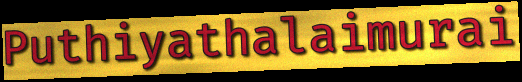
Puthiyathalaimurai